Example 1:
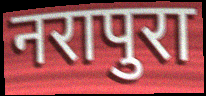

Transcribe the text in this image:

नरापुरा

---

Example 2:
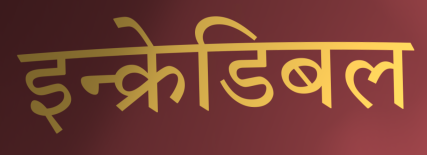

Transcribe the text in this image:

इन्क्रेडिबल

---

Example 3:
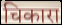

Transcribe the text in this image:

चिकारा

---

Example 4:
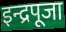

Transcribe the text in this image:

इन्द्रपूजा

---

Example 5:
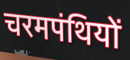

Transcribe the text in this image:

चरमपंथियों